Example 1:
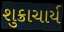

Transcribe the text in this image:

શુક્રાચાર્ય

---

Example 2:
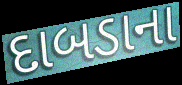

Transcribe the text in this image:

દાબડાના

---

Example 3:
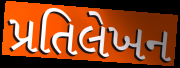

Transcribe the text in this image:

પ્રતિલેખન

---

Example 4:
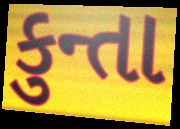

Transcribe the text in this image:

કુન્તા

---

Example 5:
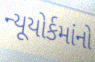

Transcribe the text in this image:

ન્યૂયોર્કમાંનો